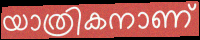
യാത്രികനാണ്